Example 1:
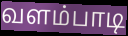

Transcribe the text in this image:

வளம்பாடி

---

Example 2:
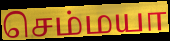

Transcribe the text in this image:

செம்மயா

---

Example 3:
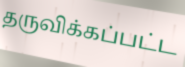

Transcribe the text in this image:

தருவிக்கப்பட்ட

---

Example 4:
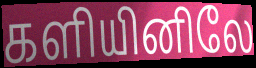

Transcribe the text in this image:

களியினிலே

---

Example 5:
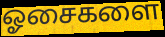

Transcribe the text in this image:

ஓசைகளை